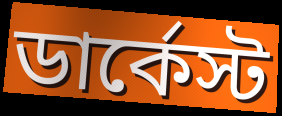
ডার্কেস্ট